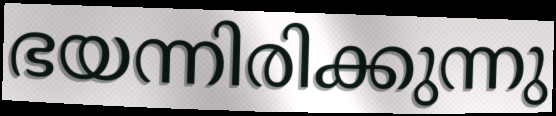
ഭയന്നിരിക്കുന്നു